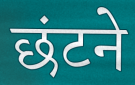
छंटने